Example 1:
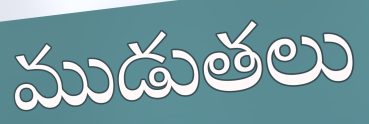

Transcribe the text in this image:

ముడుతలు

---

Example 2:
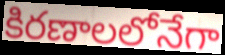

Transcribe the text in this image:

కిరణాలలోనేగా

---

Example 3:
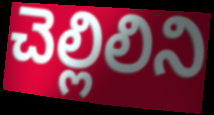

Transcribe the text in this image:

చెల్లిలిని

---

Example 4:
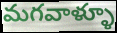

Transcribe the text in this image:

మగవాళ్ళూ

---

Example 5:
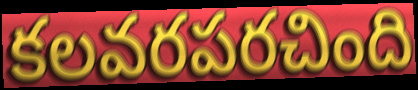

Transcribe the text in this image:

కలవరపరచింది